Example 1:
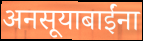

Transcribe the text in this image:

अनसूयाबाईंना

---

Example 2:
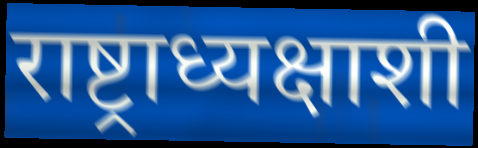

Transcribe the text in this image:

राष्ट्राध्यक्षाशी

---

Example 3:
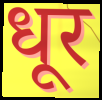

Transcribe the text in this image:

धूर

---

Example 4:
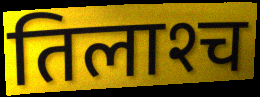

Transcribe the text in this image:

तिलाश्च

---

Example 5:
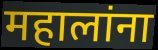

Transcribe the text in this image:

महालांना